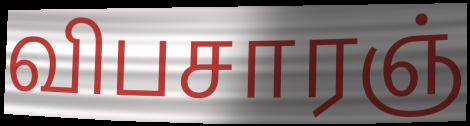
விபசாரஞ்